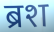
ब्रश